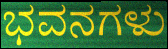
ಭವನಗಳು